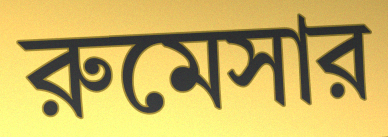
রুমেসার